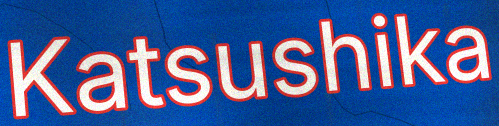
Katsushika